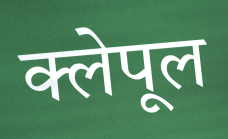
क्लेपूल